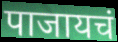
पाजायचं